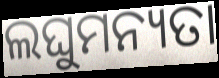
ଲଘୁମନ୍ୟତା